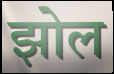
झोल